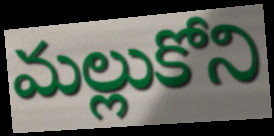
మల్లుకోని